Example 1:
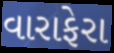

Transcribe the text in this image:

વારાફેરા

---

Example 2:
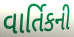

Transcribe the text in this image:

વાર્તિકની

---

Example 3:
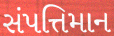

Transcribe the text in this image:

સંપત્તિમાન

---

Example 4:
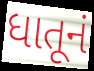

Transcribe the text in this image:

ધાતૂનં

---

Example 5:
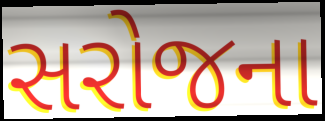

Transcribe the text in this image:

સરોજના